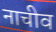
नाचीव